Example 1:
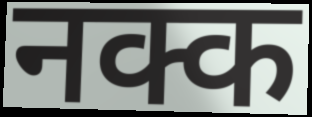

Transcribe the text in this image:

नक्क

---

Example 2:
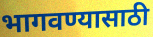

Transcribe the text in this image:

भागवण्यासाठी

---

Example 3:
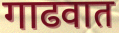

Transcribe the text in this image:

गाढवात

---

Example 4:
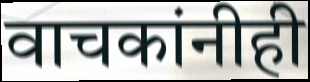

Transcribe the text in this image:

वाचकांनीही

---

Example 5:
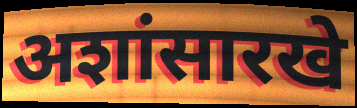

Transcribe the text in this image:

अशांसारखे